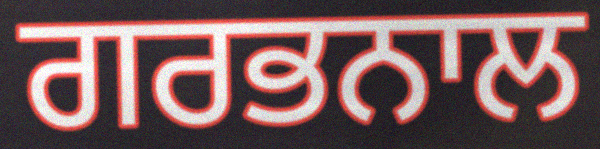
ਗਰਭਨਾਲ